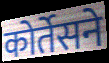
कोर्तेसने